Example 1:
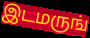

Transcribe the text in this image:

இடமருங்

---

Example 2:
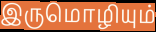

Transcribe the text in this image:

இருமொழியும்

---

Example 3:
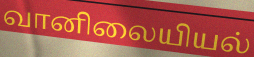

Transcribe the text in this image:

வானிலையியல்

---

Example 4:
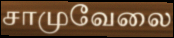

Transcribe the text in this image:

சாமுவேலை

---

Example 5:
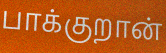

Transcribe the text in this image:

பாக்குறான்